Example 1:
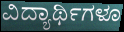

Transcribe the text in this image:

ವಿದ್ಯಾರ್ಥಿಗಳೂ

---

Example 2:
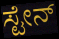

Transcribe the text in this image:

ಸ್ಟೇನ್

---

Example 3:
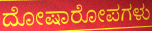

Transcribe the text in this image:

ದೋಷಾರೋಪಗಳು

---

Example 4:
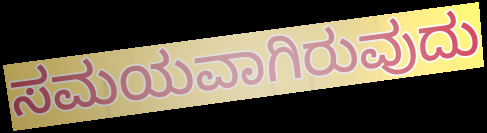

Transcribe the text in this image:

ಸಮಯವಾಗಿರುವುದು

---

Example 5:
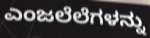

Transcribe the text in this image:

ಎಂಜಲೆಲೆಗಳನ್ನು